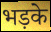
भड़के